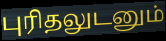
புரிதலுடனும்